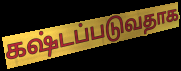
கஷ்டப்படுவதாக